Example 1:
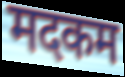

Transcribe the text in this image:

मदकम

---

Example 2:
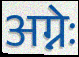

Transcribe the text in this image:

अग्नेः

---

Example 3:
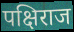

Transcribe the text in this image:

पक्षिराज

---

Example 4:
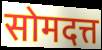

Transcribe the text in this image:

सोमदत्त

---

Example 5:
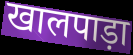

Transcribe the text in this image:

खालपाड़ा